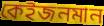
কেইজনমান